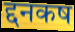
द्दनकष